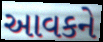
આવકને